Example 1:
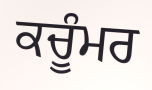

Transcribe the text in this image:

ਕਚੂੰਮਰ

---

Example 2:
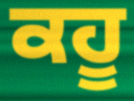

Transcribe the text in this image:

ਕਹੂ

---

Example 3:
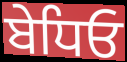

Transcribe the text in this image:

ਬੇਧਿਓ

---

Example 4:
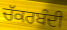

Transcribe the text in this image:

ਚੱਕਰਬੰਦੀ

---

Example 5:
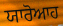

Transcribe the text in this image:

ਯਾਰੋਆਹ